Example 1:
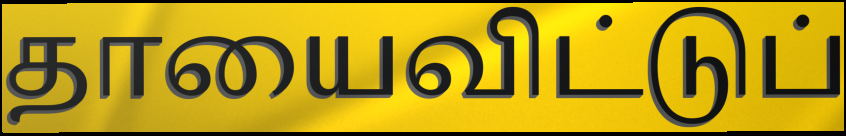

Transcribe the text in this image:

தாயைவிட்டுப்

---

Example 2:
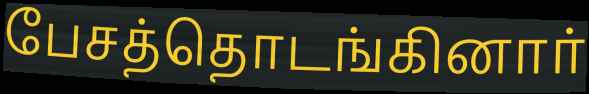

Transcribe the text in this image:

பேசத்தொடங்கினார்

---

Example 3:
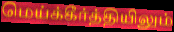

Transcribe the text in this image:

மெய்க்கீர்த்தியிலும்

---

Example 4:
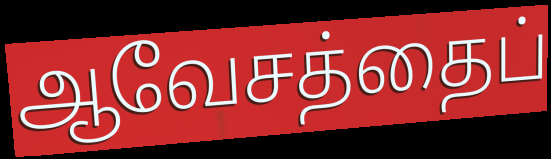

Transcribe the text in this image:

ஆவேசத்தைப்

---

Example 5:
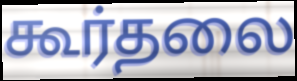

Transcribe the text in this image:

கூர்தலை